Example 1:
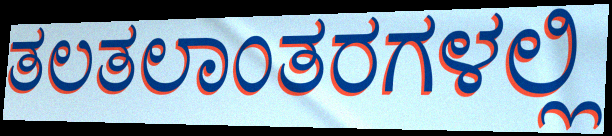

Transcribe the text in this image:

ತಲತಲಾಂತರಗಳಲ್ಲಿ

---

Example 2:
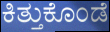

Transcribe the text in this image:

ಕಿತ್ತುಕೊಂಡೆ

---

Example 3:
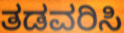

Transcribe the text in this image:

ತಡವರಿಸಿ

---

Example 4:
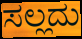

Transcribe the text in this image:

ಸಲ್ಲದು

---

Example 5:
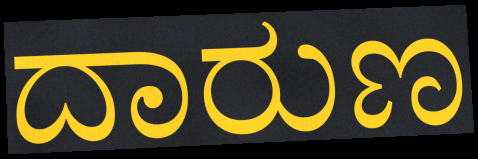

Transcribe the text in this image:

ದಾರುಣ